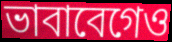
ভাবাবেগেও